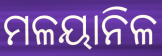
ମଳୟାନିଳ